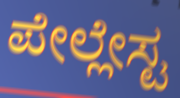
ಪೇಲ್ಲೇಸ್ಟ